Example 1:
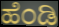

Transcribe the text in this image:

ಹೆಂಡಿ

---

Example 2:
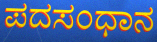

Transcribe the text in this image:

ಪದಸಂಧಾನ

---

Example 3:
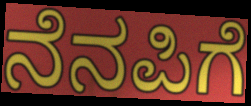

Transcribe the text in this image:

ನೆನಪಿಗೆ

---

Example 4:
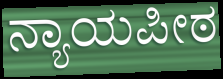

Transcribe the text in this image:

ನ್ಯಾಯಪೀಠ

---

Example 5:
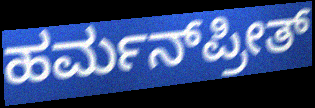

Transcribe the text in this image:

ಹರ್ಮನ್‌ಪ್ರೀತ್